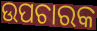
ଉପଚାରକ